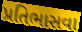
પ્રતિભાસવા